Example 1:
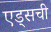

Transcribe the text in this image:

एड्सची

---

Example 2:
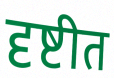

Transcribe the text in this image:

दृष्टीत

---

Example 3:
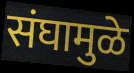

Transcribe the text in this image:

संघामुळे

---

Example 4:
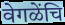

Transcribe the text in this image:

वेगळेंचि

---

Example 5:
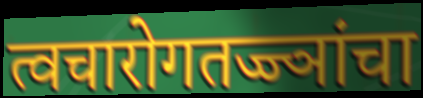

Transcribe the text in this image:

त्वचारोगतज्ज्ञांचा